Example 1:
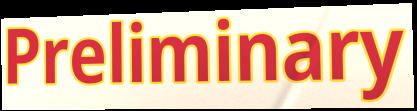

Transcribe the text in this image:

Preliminary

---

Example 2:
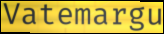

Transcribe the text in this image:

Vatemargu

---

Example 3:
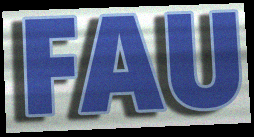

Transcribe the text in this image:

FAU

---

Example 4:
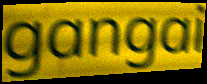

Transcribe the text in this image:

gangai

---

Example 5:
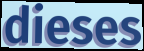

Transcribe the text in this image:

dieses